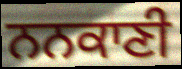
ਨਨਕਾਣੀ